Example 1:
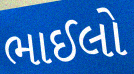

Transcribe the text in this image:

ભાઈલો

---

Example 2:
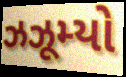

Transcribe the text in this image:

ઝઝૂમ્યો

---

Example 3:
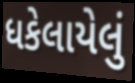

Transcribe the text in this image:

ધકેલાયેલું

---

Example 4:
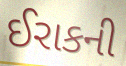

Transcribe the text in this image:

ઈરાકની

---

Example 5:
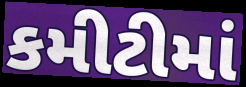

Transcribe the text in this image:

કમીટીમાં